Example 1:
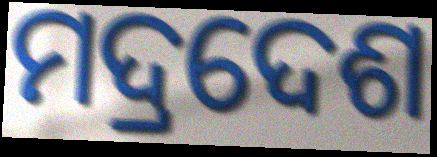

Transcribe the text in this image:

ମଦ୍ରଦେଶ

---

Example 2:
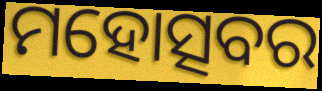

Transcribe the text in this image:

ମହୋତ୍ସବର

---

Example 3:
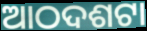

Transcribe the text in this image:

ଆଠଦଶଟା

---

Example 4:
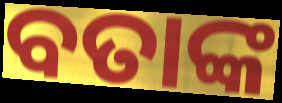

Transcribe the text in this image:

ବତାଙ୍କ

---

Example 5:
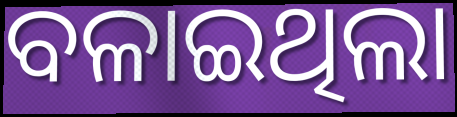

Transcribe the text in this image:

ବଳାଇଥିଲା